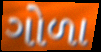
ગોળા